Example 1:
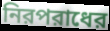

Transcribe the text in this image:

নিরপরাধের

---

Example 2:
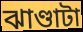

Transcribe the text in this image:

ঝাণ্ডাটা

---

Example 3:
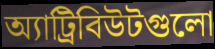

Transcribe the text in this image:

অ্যাট্রিবিউটগুলো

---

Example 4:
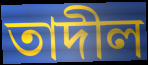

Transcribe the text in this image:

তাদীল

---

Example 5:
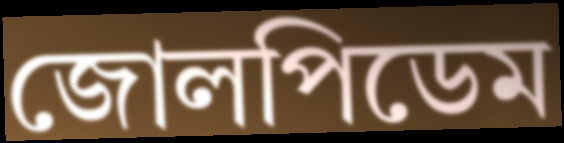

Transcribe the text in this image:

জোলপিডেম